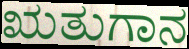
ಋತುಗಾನ